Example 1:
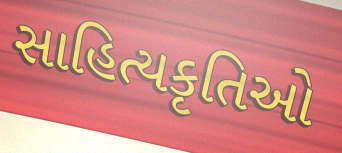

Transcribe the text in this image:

સાહિત્યકૃતિઓ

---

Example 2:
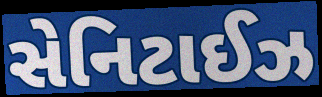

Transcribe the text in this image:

સેનિટાઈઝ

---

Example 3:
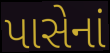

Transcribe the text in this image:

પાસેનાં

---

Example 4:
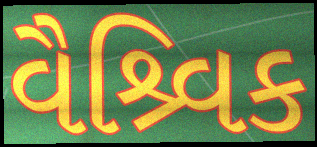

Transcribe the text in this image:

વૈશ્ર્વિક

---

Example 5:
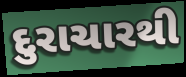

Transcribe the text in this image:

દુરાચારથી